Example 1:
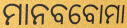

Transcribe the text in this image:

ମାନବବୋମା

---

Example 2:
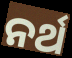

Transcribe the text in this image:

ନର୍ଥ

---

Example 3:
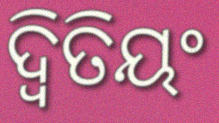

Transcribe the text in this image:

ଦ୍ୱିତିୟଂ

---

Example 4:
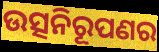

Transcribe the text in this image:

ଉତ୍ସନିରୂପଣର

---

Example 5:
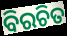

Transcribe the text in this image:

ବିରଚିତ